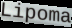
Lipoma